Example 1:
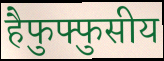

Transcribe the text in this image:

हैफुफ्फुसीय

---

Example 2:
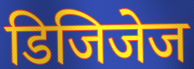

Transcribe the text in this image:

डिजिजेज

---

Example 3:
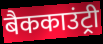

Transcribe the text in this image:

बैककाउंट्री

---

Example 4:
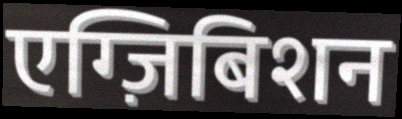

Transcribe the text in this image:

एग्ज़िबिशन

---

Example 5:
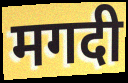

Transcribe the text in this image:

मगदी